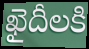
ఖైదీలకి